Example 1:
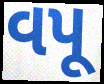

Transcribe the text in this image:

વપૂ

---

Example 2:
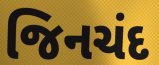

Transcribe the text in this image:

જિનચંદ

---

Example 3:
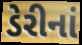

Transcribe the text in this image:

ડેરીનાં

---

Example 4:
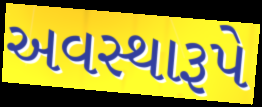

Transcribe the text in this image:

અવસ્થારૂપે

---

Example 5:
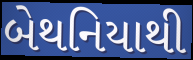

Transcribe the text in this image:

બેથનિયાથી